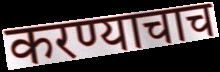
करण्याचाच